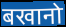
बखानो